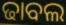
ଢାବଲ